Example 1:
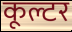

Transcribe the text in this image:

कूल्‍टर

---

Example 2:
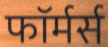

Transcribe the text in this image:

फॉर्मर्स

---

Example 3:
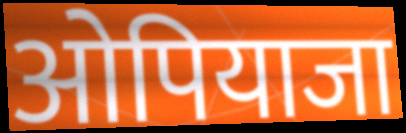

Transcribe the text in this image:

ओपियाजा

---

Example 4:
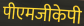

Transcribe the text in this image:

पीएमजीकेपी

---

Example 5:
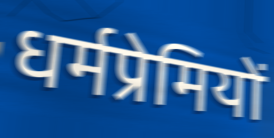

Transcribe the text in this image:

धर्मप्रेमियों